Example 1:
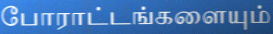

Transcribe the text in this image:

போராட்டங்களையும்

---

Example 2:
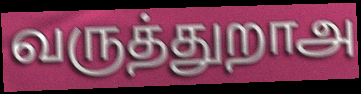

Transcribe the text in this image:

வருத்துறாஅ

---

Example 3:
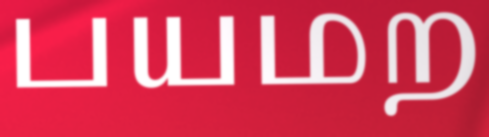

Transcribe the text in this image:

பயமற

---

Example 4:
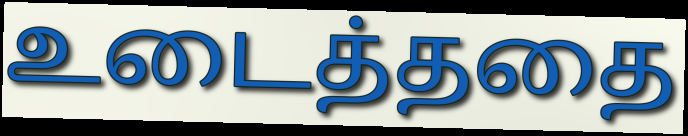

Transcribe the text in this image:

உடைத்ததை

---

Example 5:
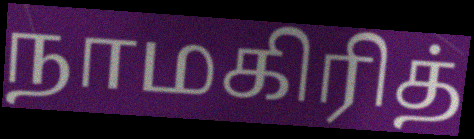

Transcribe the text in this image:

நாமகிரித்